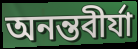
অনন্তবীর্যা